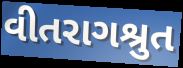
વીતરાગશ્રુત